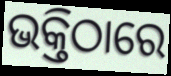
ଭକ୍ତିଠାରେ